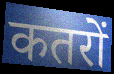
कतरों